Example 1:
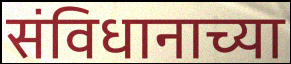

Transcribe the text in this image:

संविधानाच्या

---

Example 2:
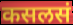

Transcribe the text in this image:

कसलसं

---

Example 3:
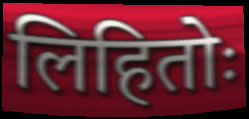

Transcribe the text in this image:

लिहितोः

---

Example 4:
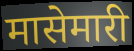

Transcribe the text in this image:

मासेमारी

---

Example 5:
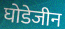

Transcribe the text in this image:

घोडेजीन